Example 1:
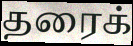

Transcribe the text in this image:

தரைக்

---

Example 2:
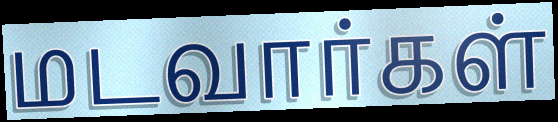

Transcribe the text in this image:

மடவார்கள்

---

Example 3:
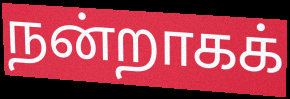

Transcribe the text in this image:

நன்றாகக்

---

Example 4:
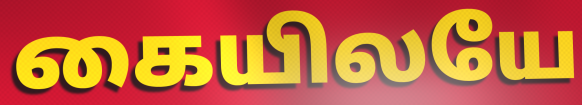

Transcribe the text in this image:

கையிலயே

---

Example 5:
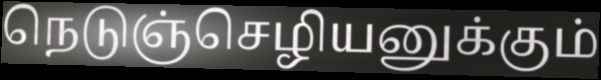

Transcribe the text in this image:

நெடுஞ்செழியனுக்கும்